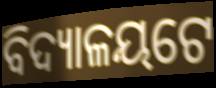
ବିଦ୍ୟାଳୟଟେ